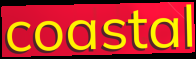
coastal